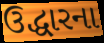
ઉદ્ધારના